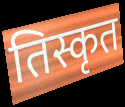
तिस्कृत